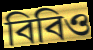
বিবিও